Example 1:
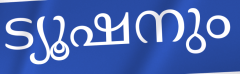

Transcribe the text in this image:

ട്യൂഷനും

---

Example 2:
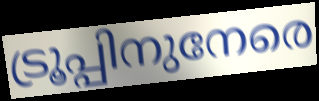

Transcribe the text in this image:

ട്രൂപ്പിനുനേരെ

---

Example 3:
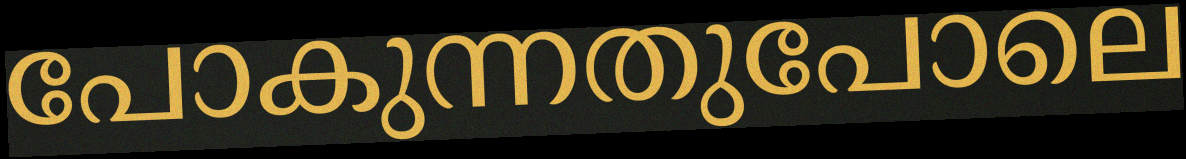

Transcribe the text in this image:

പോകുന്നതുപോലെ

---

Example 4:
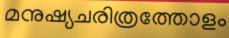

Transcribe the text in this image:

മനുഷ്യചരിത്രത്തോളം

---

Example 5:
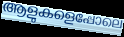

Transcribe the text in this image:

ആളുകളെപ്പോലെ